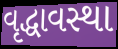
વૃદ્ધાવસ્થા